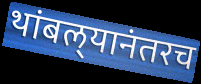
थांबल्यानंतरच